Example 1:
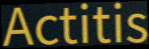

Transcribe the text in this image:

Actitis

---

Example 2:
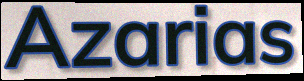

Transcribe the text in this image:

Azarias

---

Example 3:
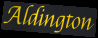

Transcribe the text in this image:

Aldington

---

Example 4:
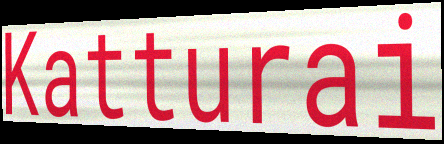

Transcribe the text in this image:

Katturai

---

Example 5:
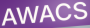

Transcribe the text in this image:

AWACS